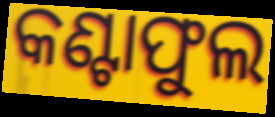
କଣ୍ଟାଫୁଲ